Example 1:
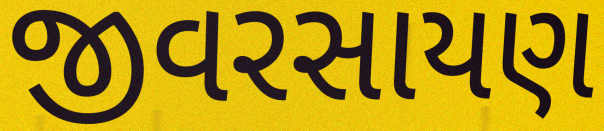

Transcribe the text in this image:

જીવરસાયણ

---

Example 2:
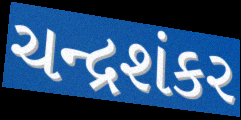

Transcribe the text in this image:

ચન્દ્રશંકર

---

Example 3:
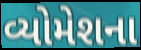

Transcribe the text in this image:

વ્યોમેશના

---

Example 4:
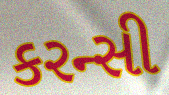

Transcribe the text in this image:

કરન્સી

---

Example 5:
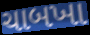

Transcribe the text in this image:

ચાબખા